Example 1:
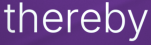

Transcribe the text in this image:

thereby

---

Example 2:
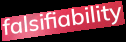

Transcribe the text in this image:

falsifiability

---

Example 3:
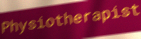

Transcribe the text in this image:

Physiotherapist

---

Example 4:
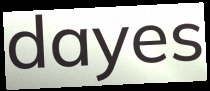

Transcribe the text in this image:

dayes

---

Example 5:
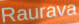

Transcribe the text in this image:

Raurava